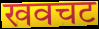
खवचट